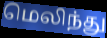
மெலிந்து